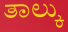
ತಾಲ್ಕು